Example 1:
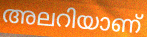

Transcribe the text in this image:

അലറിയാണ്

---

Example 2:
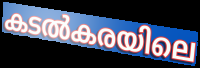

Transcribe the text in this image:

കടൽകരയിലെ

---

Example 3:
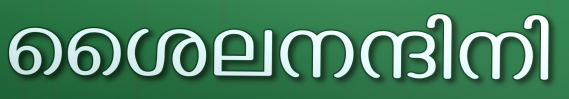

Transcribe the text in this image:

ശൈലനന്ദിനി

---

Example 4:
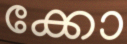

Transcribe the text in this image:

ക്കോ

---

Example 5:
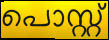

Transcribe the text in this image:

പൊസ്റ്റ്